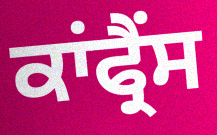
ਕਾਂਫ੍ਰੈਂਸ